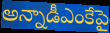
అన్నాడీఎంకేపై